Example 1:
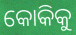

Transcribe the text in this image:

କୋକିକୁ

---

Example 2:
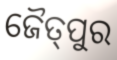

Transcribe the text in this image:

ଜୈତ୍‌ପୁର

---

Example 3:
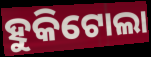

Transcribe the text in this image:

ହୁକିଟୋଲା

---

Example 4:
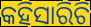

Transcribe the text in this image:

କହିସାରିଚି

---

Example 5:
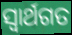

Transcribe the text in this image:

ସ୍ୱାର୍ଥଗତ